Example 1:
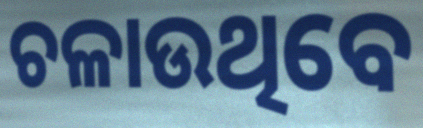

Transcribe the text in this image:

ଚଳାଉଥିବେ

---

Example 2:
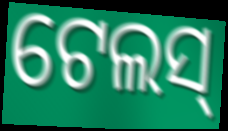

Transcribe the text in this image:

ଟେଲସ୍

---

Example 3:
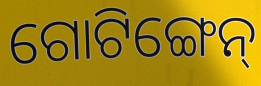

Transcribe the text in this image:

ଗୋଟିଙ୍ଗେନ୍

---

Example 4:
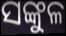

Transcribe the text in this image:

ସଙ୍କୁଳ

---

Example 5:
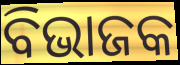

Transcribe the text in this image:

ବିଭାଜକ